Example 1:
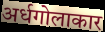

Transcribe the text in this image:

अर्धगोलाकार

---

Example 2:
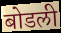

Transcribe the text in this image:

बोडली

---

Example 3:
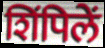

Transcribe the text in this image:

शिंपिलें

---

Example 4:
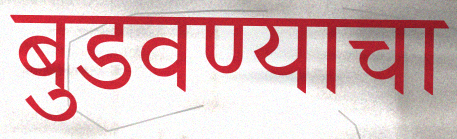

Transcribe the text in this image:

बुडवण्याचा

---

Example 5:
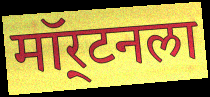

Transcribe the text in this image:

मॉर्टनला